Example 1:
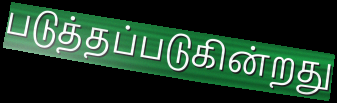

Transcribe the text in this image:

படுத்தப்படுகின்றது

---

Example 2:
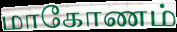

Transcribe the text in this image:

மாகோணம்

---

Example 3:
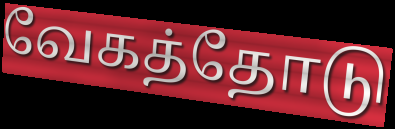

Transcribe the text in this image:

வேகத்தோடு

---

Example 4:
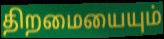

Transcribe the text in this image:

திறமையையும்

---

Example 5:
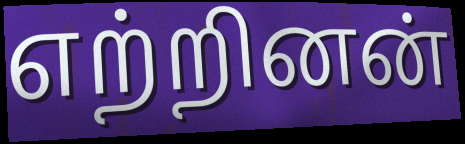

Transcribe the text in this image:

எற்றினன்